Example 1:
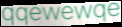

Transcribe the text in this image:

qqewewqe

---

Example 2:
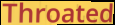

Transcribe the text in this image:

Throated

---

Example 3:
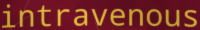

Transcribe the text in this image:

intravenous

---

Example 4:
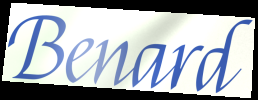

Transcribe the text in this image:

Benard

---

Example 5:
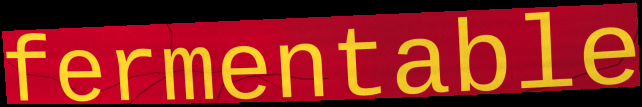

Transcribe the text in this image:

fermentable